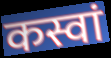
कस्‍वां